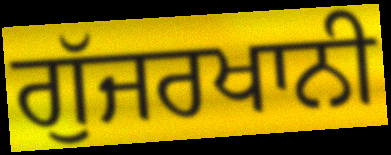
ਗੁੱਜਰਖਾਨੀ